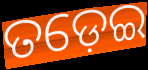
ତଡ଼େଇ